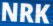
NRK